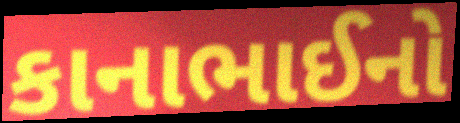
કાનાભાઈનો